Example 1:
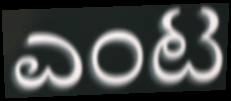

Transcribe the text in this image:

ಎಂಟ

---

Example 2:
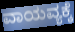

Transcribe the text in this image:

ವಾಯವ್ಯಕ್ಕೆ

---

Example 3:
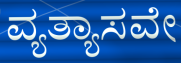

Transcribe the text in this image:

ವ್ಯತ್ಯಾಸವೇ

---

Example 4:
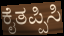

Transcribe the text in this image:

ಕೈತಪ್ಪಿಸಿ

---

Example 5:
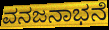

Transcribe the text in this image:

ವನಜನಾಭನೆ